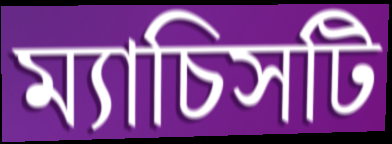
ম্যাচিসটি